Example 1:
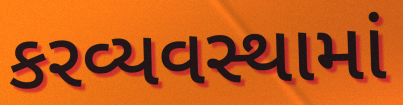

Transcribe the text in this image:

કરવ્યવસ્થામાં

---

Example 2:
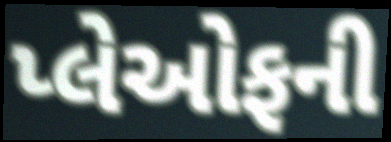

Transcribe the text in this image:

પ્લેઓફની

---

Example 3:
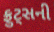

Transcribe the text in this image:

ફ્રુટ્સની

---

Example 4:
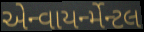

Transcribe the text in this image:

એન્વાયર્ન્મેન્ટલ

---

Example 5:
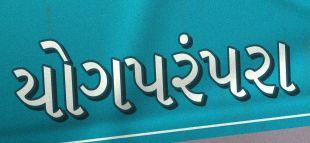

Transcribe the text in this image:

યોગપરંપરા